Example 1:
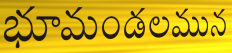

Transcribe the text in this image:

భూమండలమున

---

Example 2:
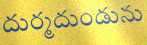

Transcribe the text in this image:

దుర్మదుండును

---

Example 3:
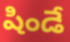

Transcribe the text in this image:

షిండే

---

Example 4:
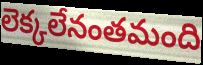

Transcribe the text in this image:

లెక్కలేనంతమంది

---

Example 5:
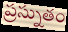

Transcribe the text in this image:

ప్రస్నుతం